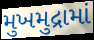
મુખમુદ્રામાં